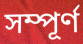
সম্পূর্ণ